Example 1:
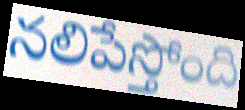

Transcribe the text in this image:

నలిపేస్తోంది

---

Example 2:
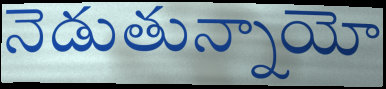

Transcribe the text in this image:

నెడుతున్నాయో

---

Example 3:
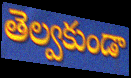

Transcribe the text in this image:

తెల్వకుండా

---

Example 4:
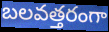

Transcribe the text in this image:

బలవత్తరంగా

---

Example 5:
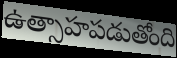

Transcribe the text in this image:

ఉత్సాహపడుతోంది